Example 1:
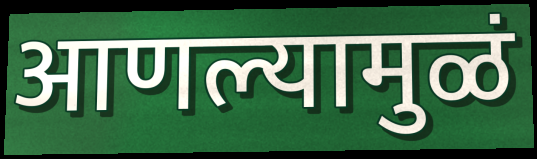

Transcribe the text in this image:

आणल्यामुळं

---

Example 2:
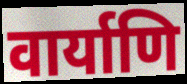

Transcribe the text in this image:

वार्याणि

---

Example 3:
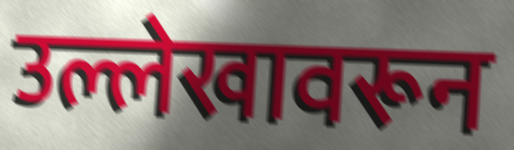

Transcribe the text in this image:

उल्लेखावरून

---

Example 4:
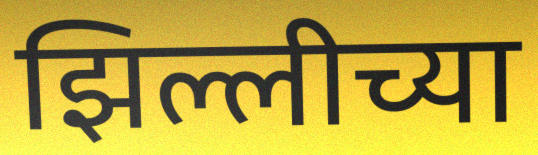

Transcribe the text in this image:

झिल्लीच्या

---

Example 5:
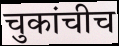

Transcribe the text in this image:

चुकांचीच